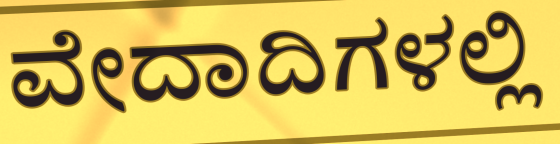
ವೇದಾದಿಗಳಲ್ಲಿ